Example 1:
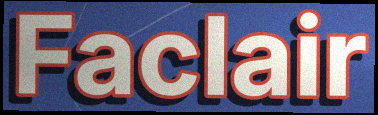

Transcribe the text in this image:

Faclair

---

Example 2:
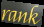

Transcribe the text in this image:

rank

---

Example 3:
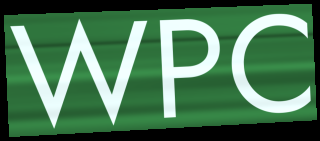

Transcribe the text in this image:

WPC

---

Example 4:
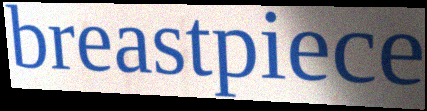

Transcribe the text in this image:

breastpiece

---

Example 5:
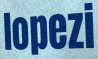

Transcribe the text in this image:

lopezi